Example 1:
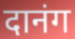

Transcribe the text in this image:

दानंग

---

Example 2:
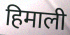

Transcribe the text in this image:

हिमाली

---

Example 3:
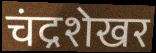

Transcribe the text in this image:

चंद्रशेखर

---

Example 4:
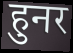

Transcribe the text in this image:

हुनर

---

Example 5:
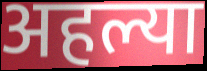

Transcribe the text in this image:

अहल्या